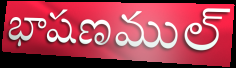
భాషణముల్